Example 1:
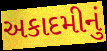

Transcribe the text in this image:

અકાદમીનું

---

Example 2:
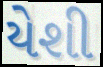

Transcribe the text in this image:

યેશી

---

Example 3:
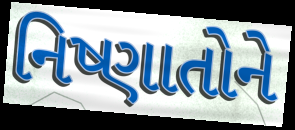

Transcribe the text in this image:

નિષ્ણાતોને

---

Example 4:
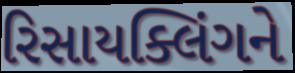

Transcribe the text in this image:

રિસાયક્લિંગને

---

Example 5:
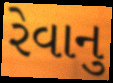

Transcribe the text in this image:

રેવાનુ